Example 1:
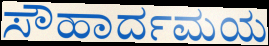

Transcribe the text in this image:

ಸೌಹಾರ್ದಮಯ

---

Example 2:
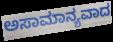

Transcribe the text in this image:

ಅಸಾಮಾನ್ಯವಾದ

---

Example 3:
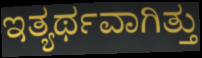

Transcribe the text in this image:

ಇತ್ಯರ್ಥವಾಗಿತ್ತು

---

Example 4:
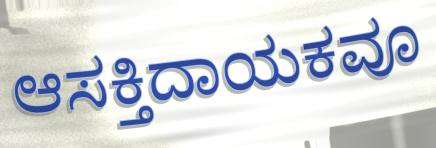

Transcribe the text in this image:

ಆಸಕ್ತಿದಾಯಕವೂ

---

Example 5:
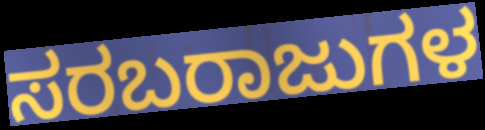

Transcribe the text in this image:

ಸರಬರಾಜುಗಳ